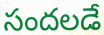
సందలడే